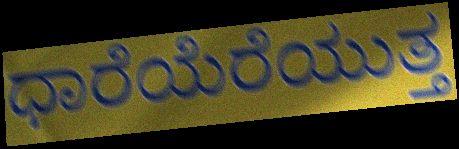
ಧಾರೆಯೆರೆಯುತ್ತ